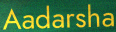
Aadarsha